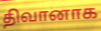
திவானாக